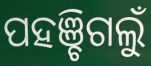
ପହଞ୍ଚିଗଲୁଁ